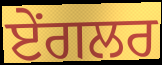
ਏਂਗਲਰ